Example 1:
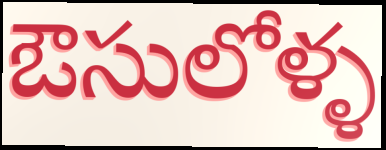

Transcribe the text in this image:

ఔసులోళ్ళ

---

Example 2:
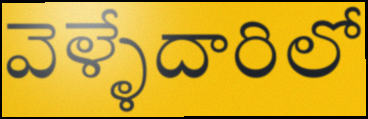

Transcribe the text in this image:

వెళ్ళేదారిలో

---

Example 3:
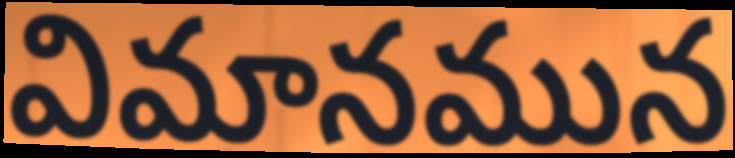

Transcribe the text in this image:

విమానమున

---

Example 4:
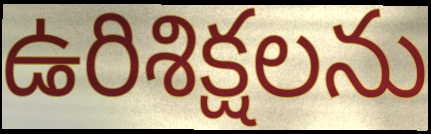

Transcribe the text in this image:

ఉరిశిక్షలను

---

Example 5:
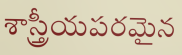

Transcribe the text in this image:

శాస్త్రీయపరమైన